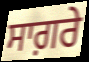
ਸਾਗ਼ਰੇ